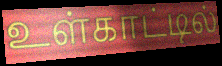
உள்காட்டில்